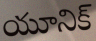
యూనిక్